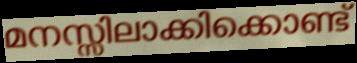
മനസ്സിലാക്കിക്കൊണ്ട്